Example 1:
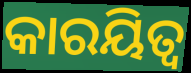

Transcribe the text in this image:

କାରୟିତ୍ୱ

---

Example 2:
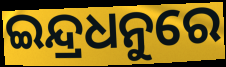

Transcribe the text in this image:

ଇନ୍ଦ୍ରଧନୁରେ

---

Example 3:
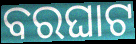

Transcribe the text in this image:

ବରଘାଟ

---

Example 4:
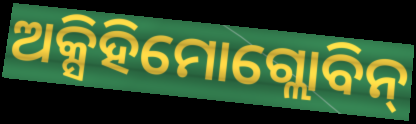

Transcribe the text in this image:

ଅକ୍ସିହିମୋଗ୍ଲୋବିନ୍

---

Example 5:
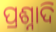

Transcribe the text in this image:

ପ୍ରଶ୍ନାଦି